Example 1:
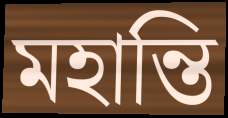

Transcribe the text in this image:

মহান্তি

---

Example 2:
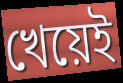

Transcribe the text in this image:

খেয়েই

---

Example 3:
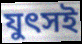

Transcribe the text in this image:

যুৎসই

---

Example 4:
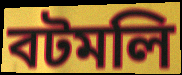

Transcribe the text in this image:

বটমলি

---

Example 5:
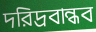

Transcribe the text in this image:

দরিদ্রবান্ধব